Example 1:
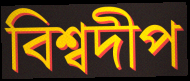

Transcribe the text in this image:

বিশ্বদীপ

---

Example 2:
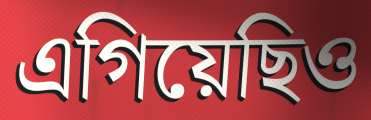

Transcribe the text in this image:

এগিয়েছিও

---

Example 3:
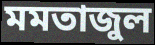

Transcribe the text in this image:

মমতাজুল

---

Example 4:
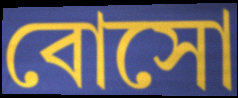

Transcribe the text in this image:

বোসো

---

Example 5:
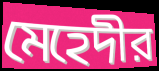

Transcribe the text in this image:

মেহেদীর